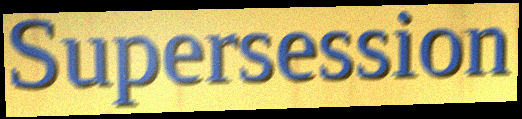
Supersession